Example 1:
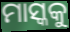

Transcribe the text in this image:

ମାସ୍କକୁ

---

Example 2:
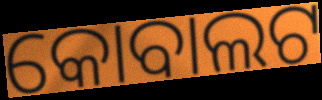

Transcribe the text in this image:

କୋବାଲଟ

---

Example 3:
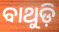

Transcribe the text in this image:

ବାଥୁଡ଼ି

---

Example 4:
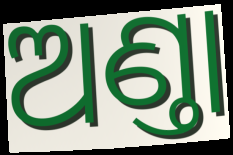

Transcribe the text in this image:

ଅଣ୍ତା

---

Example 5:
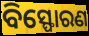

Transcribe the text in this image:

ବିସ୍ଫୋରଣ